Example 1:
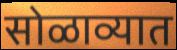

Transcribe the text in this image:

सोळाव्यात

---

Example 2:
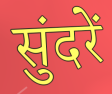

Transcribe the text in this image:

सुंदरें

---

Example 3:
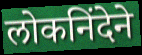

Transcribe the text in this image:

लोकनिंदेने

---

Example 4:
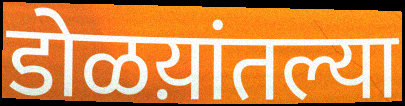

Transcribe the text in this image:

डोळय़ांतल्या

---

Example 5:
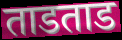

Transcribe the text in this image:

ताडताड